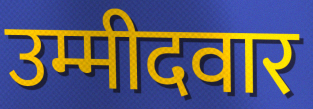
उम्‍मीदवार